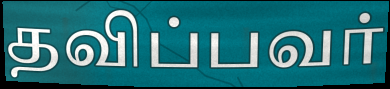
தவிப்பவர்